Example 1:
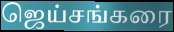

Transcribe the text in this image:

ஜெய்சங்கரை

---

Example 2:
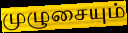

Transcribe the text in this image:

முழுசையும்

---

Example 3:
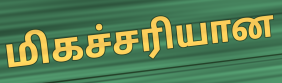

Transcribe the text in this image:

மிகச்சரியான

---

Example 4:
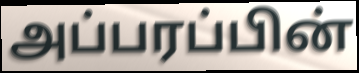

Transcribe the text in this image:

அப்பரப்பின்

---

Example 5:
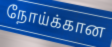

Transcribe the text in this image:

நோய்க்கான